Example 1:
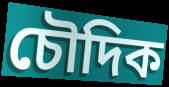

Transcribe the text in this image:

চৌদিক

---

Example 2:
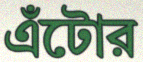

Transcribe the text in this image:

এঁটোর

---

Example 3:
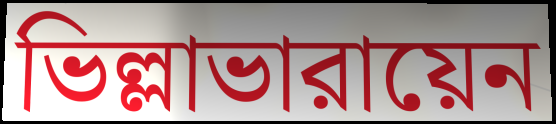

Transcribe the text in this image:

ভিল্লাভারায়েন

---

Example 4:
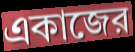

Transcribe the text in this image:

একাজের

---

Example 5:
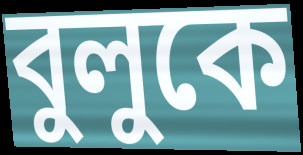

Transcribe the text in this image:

বুলুকে